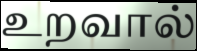
உறவால்